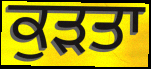
ਕੁੜਤਾ